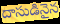
దాసుడినైన